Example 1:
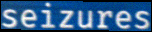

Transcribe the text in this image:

seizures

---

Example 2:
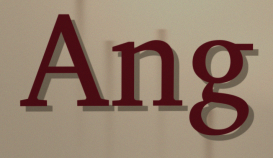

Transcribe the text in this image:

Ang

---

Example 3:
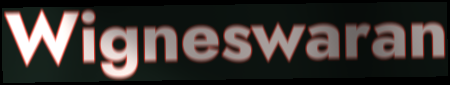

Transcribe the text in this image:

Wigneswaran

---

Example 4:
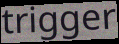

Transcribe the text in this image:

trigger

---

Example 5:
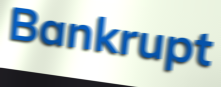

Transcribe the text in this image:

Bankrupt